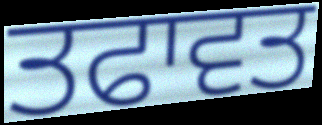
ਤਫਾਵਤ